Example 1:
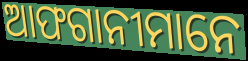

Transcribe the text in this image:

ଆଫଗାନୀମାନେ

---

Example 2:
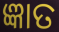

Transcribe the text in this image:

ଜ୍ଞାତ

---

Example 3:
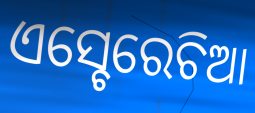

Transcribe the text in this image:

ଏସ୍ଚେରେଚିଆ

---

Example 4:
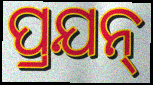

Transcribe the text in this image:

ପ୍ରଯନ୍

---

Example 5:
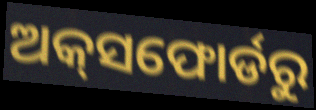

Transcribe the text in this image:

ଅକ୍‌ସଫୋର୍ଡରୁ